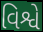
વિશ્વે